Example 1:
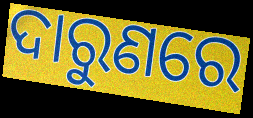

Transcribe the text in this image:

ଦାରୁଣରେ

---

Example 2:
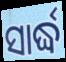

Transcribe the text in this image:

ସାର୍ଦ୍ଧ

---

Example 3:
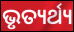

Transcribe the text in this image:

ଭୃତ୍ୟର୍ଥ୍ୟ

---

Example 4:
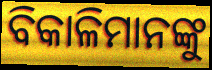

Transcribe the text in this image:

ବିକାଳିମାନଙ୍କୁ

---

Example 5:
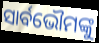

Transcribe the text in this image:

ସାର୍ବଭୌମଙ୍କୁ